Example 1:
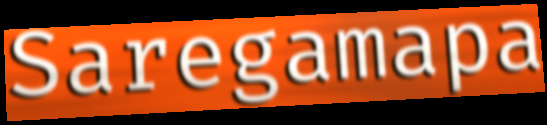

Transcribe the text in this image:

Saregamapa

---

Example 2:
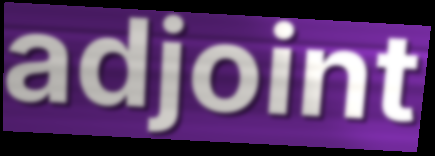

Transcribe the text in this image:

adjoint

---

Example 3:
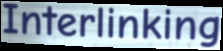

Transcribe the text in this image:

Interlinking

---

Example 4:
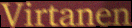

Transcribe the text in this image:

Virtanen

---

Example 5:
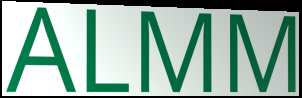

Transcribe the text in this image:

ALMM